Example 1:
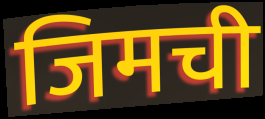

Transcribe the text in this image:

जिमची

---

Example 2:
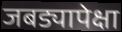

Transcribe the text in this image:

जबड्यापेक्षा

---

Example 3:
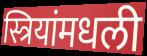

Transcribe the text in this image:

स्त्रियांमधली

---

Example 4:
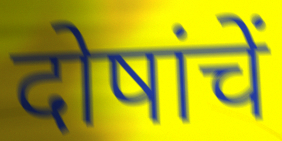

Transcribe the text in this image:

दोषांचें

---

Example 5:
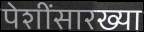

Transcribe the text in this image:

पेशींसारख्या